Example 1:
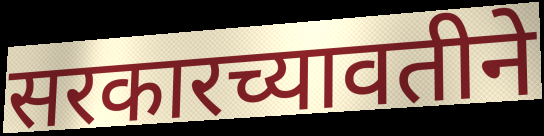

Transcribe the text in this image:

सरकारच्यावतीने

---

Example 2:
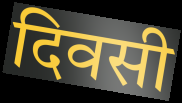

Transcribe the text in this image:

दिवसी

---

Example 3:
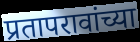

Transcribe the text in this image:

प्रतापरावांच्या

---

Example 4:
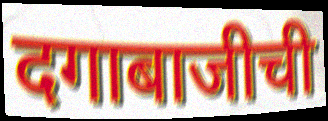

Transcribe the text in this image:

दगाबाजीची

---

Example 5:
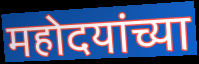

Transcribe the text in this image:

महोदयांच्या